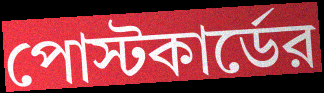
পোস্টকার্ডের